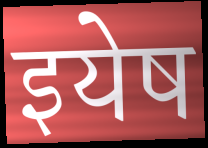
इयेष